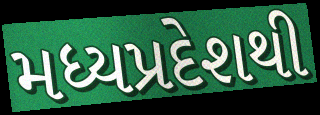
મધ્યપ્રદેશથી